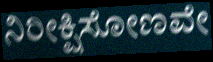
ನಿರೀಕ್ಷಿಸೋಣವೇ